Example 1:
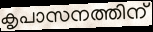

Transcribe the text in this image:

കൃപാസനത്തിന്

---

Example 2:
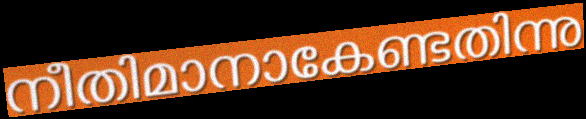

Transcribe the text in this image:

നീതിമാനാകേണ്ടതിന്നു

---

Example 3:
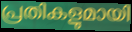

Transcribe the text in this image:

പ്രതികളുമായി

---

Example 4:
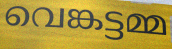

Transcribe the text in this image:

വെങ്കട്ടമ്മ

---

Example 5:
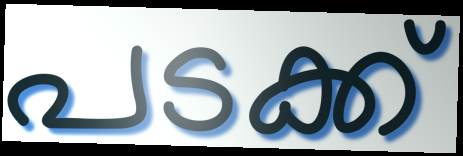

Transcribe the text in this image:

പടക്ക്